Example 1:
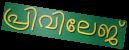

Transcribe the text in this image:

പ്രിവിലേജ്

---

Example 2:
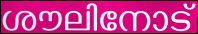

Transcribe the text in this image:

ശൗലിനോട്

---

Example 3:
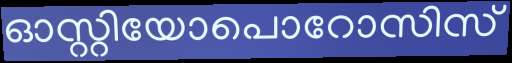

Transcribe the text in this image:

ഓസ്റ്റിയോപൊറോസിസ്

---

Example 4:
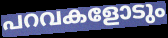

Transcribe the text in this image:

പറവകളോടും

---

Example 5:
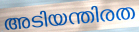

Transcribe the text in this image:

അടിയന്തിരത